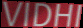
VIDHI